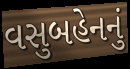
વસુબહેનનું